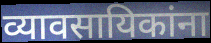
व्यावसायिकांना